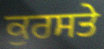
ਕੁਰਸਤੇ